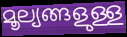
മൂല്യങ്ങളുള്ള